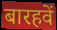
बारहवें